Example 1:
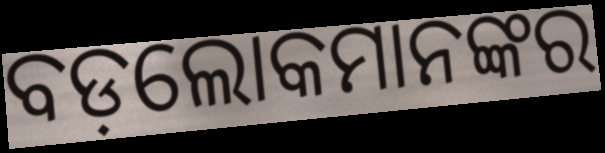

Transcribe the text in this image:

ବଡ଼ଲୋକମାନଙ୍କର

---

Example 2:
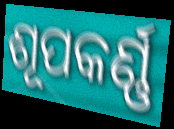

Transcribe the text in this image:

ଶୂପକର୍ଣ୍ଣ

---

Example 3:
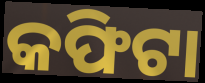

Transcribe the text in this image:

କଫିଟା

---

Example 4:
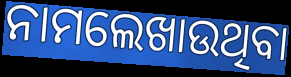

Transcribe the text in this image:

ନାମଲେଖାଉଥିବା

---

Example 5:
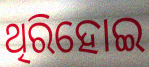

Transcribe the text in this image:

ଥିରିହୋଇ